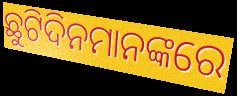
ଛୁଟିଦିନମାନଙ୍କରେ